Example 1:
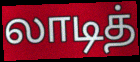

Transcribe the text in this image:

லாடித்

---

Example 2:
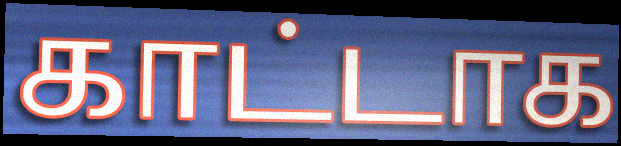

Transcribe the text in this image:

காட்டாக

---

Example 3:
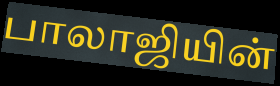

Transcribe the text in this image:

பாலாஜியின்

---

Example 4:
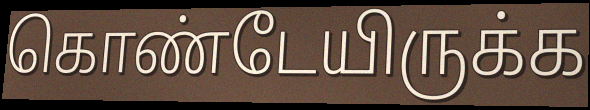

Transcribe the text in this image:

கொண்டேயிருக்க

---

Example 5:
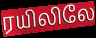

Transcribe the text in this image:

ரயிலிலே